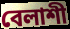
বেলাশী